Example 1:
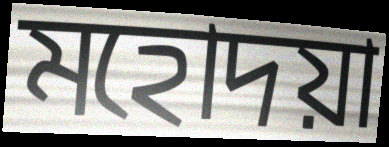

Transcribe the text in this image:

মহোদয়া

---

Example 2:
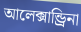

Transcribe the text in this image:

আলেক্সান্ড্রিনা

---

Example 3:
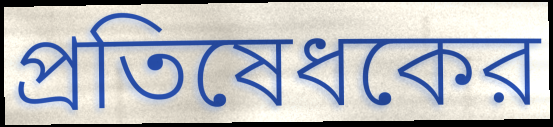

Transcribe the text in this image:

প্রতিষেধকের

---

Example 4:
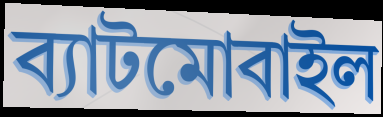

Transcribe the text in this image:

ব্যাটমোবাইল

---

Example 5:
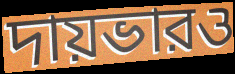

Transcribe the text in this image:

দায়ভারও